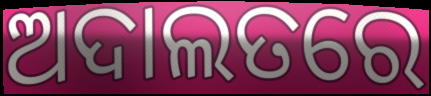
ଅଦାଲତରେ